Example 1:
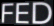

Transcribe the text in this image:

FED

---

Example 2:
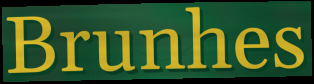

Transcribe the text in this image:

Brunhes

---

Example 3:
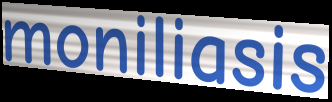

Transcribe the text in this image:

moniliasis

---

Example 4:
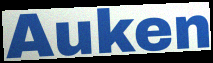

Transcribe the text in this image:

Auken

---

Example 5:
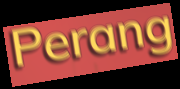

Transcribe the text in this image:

Perang